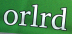
orlrd